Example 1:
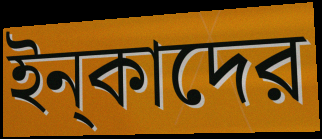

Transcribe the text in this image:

ইন্‌কাদের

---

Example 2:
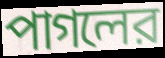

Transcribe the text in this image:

পাগলের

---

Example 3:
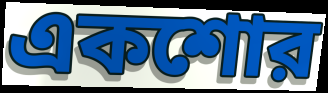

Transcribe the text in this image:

একশোর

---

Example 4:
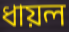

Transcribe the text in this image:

ধায়ল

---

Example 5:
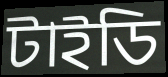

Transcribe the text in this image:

টাইডি